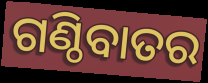
ଗଣ୍ଠିବାତର